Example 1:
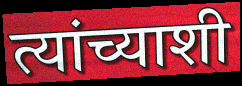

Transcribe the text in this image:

त्यांच्याशी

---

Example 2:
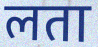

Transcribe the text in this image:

लता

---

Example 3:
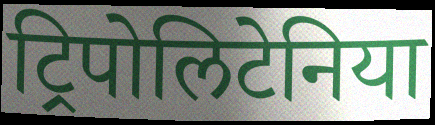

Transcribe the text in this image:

ट्रिपोलिटेनिया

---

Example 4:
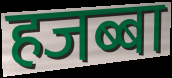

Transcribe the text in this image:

हजब्बा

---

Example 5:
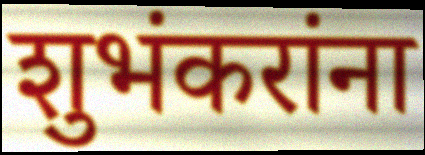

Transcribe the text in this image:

शुभंकरांना